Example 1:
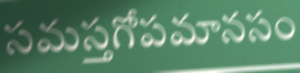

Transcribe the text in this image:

సమస్తగోపమానసం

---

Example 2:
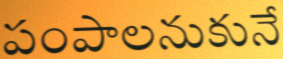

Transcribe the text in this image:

పంపాలనుకునే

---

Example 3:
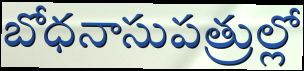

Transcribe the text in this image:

బోధనాసుపత్రుల్లో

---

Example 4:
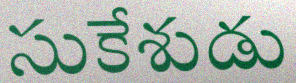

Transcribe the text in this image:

సుకేశుడు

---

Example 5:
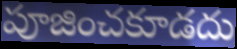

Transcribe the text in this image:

పూజించకూడదు